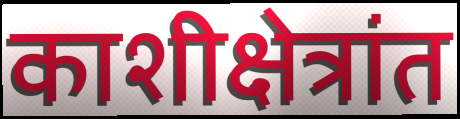
काशीक्षेत्रांत